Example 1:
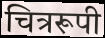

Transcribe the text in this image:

चित्ररूपी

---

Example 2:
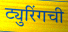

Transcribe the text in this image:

ट्युरिंगची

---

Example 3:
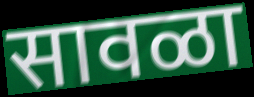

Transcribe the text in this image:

सावळा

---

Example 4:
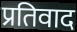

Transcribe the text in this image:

प्रतिवाद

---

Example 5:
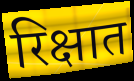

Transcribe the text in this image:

रिक्षात